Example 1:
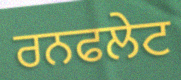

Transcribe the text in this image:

ਰਨਫਲੇਟ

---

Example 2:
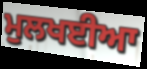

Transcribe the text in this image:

ਮੁਲਖਈਆ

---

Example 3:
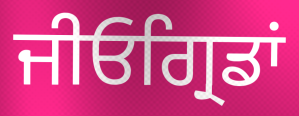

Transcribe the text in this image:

ਜੀਓਗ੍ਰਿਡਾਂ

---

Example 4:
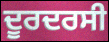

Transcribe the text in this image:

ਦੂਰਦਰਸੀ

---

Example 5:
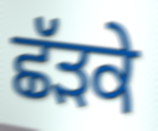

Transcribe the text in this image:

ਛੱੜਕੇ